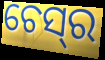
ଚେସ୍‌ର